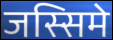
जस्सिमे